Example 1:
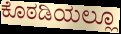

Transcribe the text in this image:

ಕೊಠಡಿಯಲ್ಲೂ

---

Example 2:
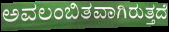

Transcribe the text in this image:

ಅವಲಂಬಿತವಾಗಿರುತ್ತದೆ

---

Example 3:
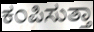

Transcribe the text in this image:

ಕಂಪಿಸುತ್ತಾ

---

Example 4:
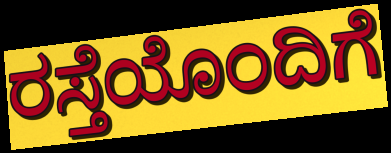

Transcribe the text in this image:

ರಸ್ತೆಯೊಂದಿಗೆ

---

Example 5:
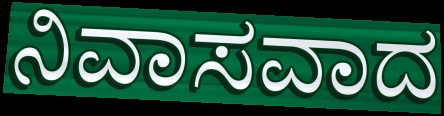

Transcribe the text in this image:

ನಿವಾಸವಾದ